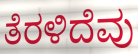
ತೆರಳಿದೆವು